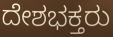
ದೇಶಭಕ್ತರು